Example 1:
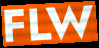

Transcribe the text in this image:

FLW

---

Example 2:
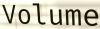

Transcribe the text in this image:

Volume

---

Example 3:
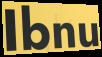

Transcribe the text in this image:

Ibnu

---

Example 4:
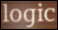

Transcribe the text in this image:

logic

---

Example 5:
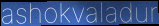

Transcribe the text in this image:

ashokvaladur